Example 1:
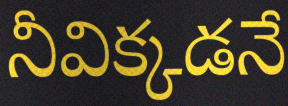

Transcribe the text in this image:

నీవిక్కడనే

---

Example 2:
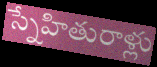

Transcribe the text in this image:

స్నేహితురాళ్లు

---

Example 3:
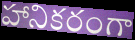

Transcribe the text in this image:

హానికరంగా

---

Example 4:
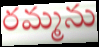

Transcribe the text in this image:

రమ్మను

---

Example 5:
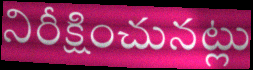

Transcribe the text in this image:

నిరీక్షించునట్లు